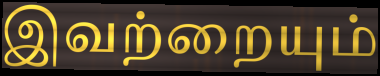
இவற்றையும்